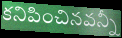
కనిపించినవన్నీ